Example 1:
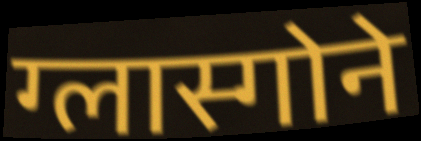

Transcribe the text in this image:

ग्लास्गोने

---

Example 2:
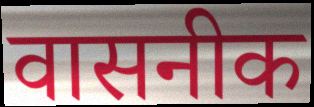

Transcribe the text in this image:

वासनीक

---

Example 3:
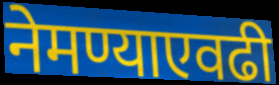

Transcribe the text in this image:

नेमण्याएवढी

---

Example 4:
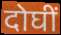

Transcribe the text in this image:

दोघीं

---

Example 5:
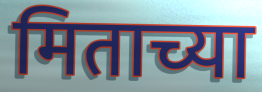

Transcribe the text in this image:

मिताच्या